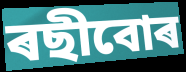
ৰছীবোৰ